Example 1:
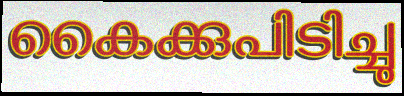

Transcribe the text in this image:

കൈക്കുപിടിച്ചു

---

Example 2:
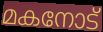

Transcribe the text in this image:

മകനോട്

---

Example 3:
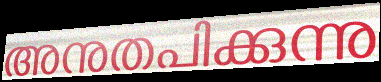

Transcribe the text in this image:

അനുതപിക്കുന്നു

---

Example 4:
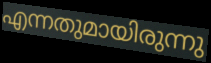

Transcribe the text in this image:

എന്നതുമായിരുന്നു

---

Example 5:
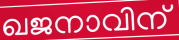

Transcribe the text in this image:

ഖജനാവിന്